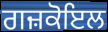
ਗਜ਼ਕੋਇਲ